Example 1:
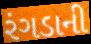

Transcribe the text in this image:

રંગડાની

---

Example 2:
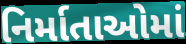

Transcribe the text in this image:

નિર્માતાઓમાં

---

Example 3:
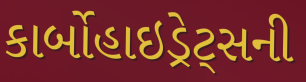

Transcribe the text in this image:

કાર્બોહાઇડ્રેટ્સની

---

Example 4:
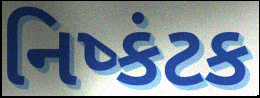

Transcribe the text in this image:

નિષ્કંટક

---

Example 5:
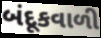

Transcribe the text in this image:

બંદૂકવાળી